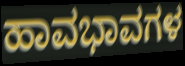
ಹಾವಭಾವಗಳ